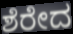
ಶೆರೇದ